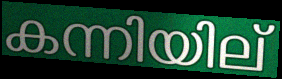
കന്നിയില്